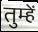
तुम्‍हें